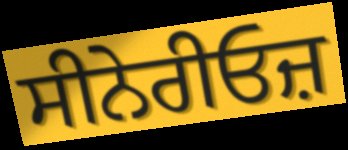
ਸੀਨੇਰੀਓਜ਼